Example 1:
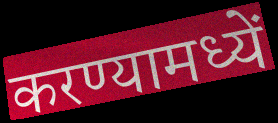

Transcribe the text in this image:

करण्यामध्यें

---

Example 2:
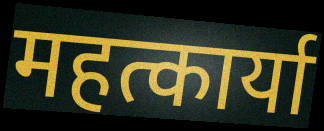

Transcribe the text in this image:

महत्कार्या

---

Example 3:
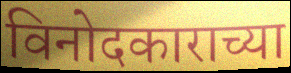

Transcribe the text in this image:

विनोदकाराच्या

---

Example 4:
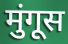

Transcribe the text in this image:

मुंगूस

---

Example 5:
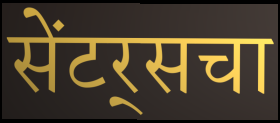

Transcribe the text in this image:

सेंटर्सचा